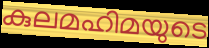
കുലമഹിമയുടെ